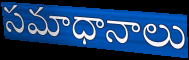
సమాధానాలు